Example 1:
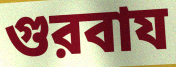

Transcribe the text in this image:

গুরবায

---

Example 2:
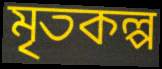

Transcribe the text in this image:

মৃতকল্প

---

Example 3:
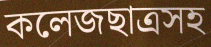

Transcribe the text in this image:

কলেজছাত্রসহ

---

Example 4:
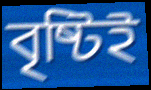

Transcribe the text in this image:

বৃষ্টিই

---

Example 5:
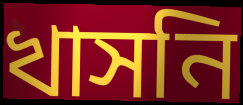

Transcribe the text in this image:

খাসনি